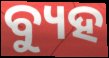
ବ୍ୟୁହ